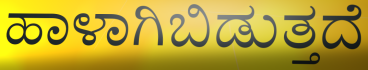
ಹಾಳಾಗಿಬಿಡುತ್ತದೆ